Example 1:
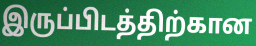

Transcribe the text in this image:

இருப்பிடத்திற்கான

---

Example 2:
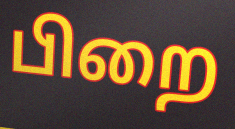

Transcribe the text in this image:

பிறை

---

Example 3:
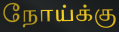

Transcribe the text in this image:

நோய்க்கு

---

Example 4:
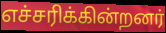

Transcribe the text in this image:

எச்சரிக்கின்றனர்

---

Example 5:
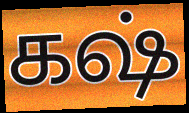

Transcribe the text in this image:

கஷ்